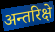
अन्तरिक्षे